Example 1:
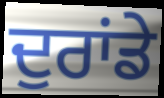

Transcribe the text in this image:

ਦੁਰਾਂਡੇ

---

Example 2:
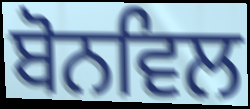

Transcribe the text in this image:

ਬੋਨਵਿਲ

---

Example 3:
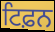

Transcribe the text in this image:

ਟਿਫ਼ਨ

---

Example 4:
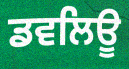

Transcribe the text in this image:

ਡਵਲਿਊ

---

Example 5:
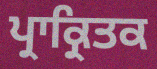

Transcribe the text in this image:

ਪ੍ਰਾਕ੍ਰਿਤਕ